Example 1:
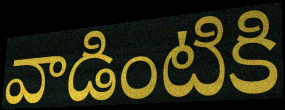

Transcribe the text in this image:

వాడింటికి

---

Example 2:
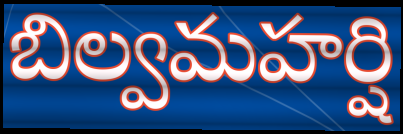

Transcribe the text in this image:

బిల్వమహర్షి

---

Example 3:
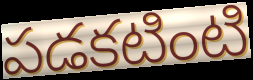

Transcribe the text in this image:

పడకటింటి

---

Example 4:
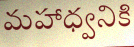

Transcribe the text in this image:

మహాధ్వనికి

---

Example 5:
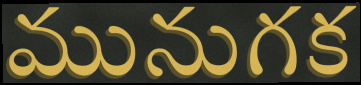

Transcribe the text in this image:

మునుగక